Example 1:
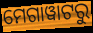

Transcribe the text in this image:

ମେଗାୱାଟରୁ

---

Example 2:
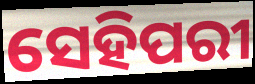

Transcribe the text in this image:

ସେହିପରୀ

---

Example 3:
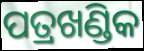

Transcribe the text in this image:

ପତ୍ରଖଣ୍ଡିକ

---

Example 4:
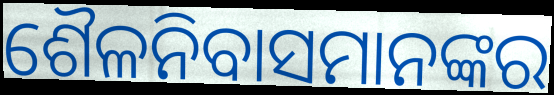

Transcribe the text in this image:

ଶୈଳନିବାସମାନଙ୍କର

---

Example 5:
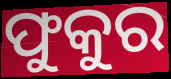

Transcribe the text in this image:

ଫୁକୁର